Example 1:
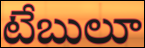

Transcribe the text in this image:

టేబులూ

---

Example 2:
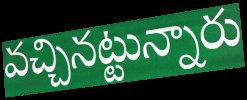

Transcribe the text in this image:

వచ్చినట్టున్నారు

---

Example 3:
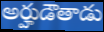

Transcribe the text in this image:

అర్హుడౌతాడు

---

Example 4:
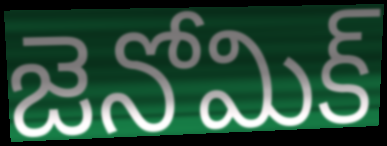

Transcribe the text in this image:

జెనోమిక్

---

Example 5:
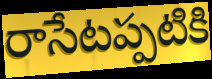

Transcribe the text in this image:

రాసేటప్పటికి